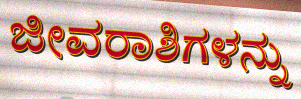
ಜೀವರಾಶಿಗಳನ್ನು